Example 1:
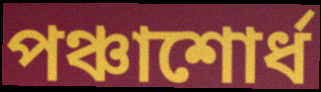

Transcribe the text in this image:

পঞ্চাশোর্ধ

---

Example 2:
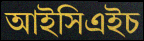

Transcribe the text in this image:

আইসিএইচ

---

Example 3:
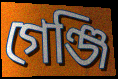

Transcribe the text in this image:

গেঞ্জি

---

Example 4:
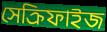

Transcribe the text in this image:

সেক্রিফাইজ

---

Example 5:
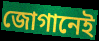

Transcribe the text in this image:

জোগানেই